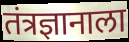
तंत्रज्ञानाला